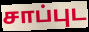
சாப்புட